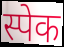
स्पेक